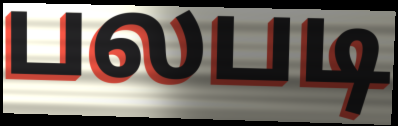
பலபடி